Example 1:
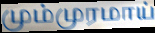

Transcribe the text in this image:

மும்முரமாய்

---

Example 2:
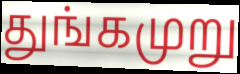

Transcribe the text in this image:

துங்கமுறு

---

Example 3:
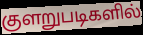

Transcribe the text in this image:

குளறுபடிகளில்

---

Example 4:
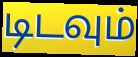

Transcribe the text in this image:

டிடவும்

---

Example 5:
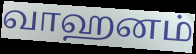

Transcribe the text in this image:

வாஹனம்